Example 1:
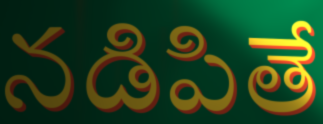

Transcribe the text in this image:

నడిపితే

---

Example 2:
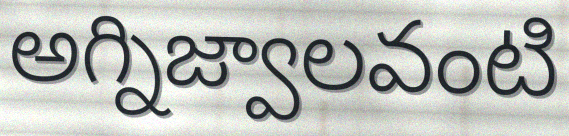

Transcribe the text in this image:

అగ్నిజ్వాలవంటి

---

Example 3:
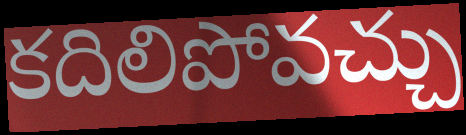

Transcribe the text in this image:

కదిలిపోవచ్చు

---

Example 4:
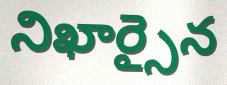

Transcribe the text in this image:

నిఖార్సైన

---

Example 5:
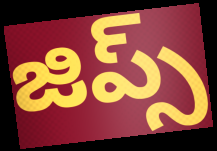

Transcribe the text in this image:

జిప్స్